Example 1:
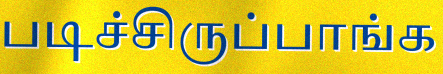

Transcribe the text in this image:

படிச்சிருப்பாங்க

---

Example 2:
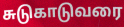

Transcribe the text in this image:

சுடுகாடுவரை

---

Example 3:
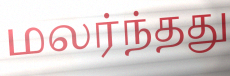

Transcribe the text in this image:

மலர்ந்தது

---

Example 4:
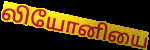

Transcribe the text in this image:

லியோனியை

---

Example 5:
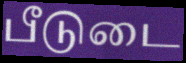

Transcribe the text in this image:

பீடுடை